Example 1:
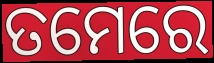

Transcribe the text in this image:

ତମେରେ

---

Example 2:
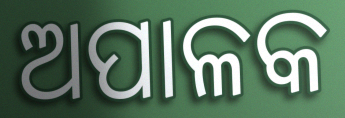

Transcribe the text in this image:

ଅପାଳକ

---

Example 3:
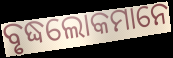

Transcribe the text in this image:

ବୃଦ୍ଧଲୋକମାନେ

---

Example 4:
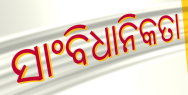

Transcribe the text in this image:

ସାଂବିଧାନିକତା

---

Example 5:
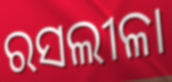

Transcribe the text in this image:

ରସଲୀଳା